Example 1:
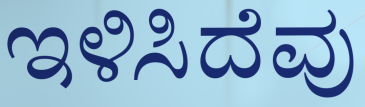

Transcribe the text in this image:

ಇಳಿಸಿದೆವು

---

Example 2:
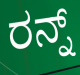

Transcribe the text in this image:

ರನ್ನ್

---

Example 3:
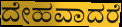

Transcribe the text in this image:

ದೇಹವಾದರೆ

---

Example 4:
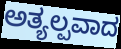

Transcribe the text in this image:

ಅತ್ಯಲ್ಪವಾದ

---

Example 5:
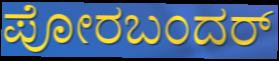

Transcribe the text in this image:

ಪೋರಬಂದರ್